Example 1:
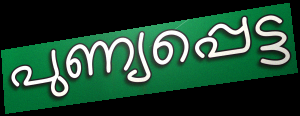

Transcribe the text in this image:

പുണ്യപ്പെട്ട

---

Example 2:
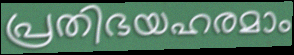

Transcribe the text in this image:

പ്രതിഭയഹരമാം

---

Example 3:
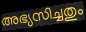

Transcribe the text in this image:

അഭ്യസിച്ചതും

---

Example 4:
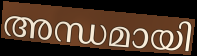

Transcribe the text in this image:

അന്ധമായി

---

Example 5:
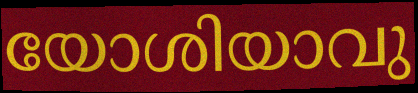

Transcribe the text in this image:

യോശിയാവു